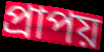
প্রাপয়